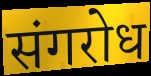
संगरोध